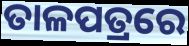
ତାଳପତ୍ରରେ